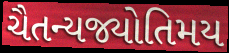
ચૈતન્યજ્યોતિમય